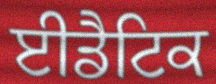
ਈਡੈਟਿਕ